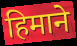
हिमाने